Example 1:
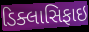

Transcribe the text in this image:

ડિક્લાસિફાઇ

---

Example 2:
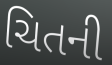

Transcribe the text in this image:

ચિતની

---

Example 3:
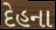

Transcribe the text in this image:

દેહના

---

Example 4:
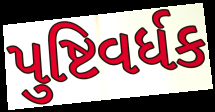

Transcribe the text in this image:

પુષ્ટિવર્ધક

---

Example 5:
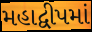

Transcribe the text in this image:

મહાદ્વીપમાં